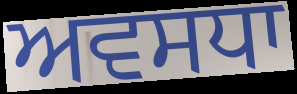
ਅਵਸਧਾ